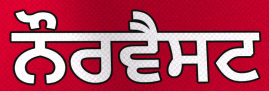
ਨੌਰਵੈਸਟ